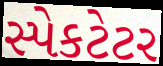
સ્પેકટેટર